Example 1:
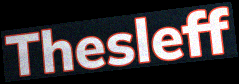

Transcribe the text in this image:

Thesleff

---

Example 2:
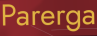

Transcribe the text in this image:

Parerga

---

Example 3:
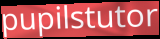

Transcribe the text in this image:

pupilstutor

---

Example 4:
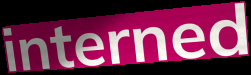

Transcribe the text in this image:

interned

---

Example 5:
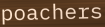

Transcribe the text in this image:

poachers